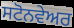
ਸਟੋਨਵੇਅਰ